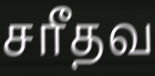
சரீதவ